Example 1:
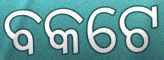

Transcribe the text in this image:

ବକଟେ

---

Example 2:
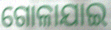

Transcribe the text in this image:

ଗୋଳାଯାଇ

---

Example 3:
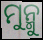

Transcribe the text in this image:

ମୁନ୍ମୁ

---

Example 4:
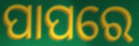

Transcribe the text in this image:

ପାପରେ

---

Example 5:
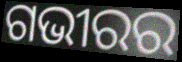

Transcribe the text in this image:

ଗଭୀରର